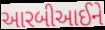
આરબીઆઈને